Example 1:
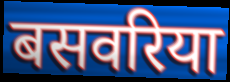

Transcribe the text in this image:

बसवरिया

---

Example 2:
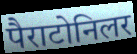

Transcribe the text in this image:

पैराटोनिलर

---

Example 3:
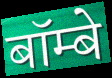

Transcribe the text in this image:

बॉम्बे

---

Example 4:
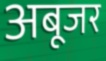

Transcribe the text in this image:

अबूजर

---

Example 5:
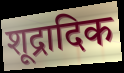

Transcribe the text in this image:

शूद्रादिक